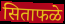
सिताफळे